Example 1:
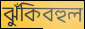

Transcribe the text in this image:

ঝুঁকিবহুল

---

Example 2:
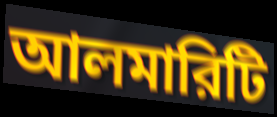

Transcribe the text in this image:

আলমারিটি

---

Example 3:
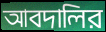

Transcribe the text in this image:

আবদালির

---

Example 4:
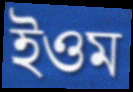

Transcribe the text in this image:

ইওম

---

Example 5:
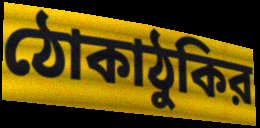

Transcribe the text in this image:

ঠোকাঠুকির